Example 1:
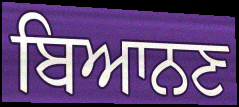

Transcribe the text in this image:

ਬਿਆਨਣ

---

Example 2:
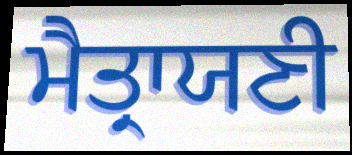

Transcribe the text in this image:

ਮੈਤ੍ਰਾਯਣੀ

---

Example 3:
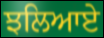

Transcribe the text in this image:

ਝਲਿਆਏ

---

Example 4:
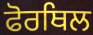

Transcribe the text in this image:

ਫੋਰਥਿਲ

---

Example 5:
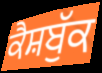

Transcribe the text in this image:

ਕੈਸ਼ਬੁੱਕ